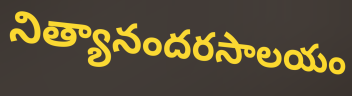
నిత్యానందరసాలయం